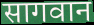
सागवान